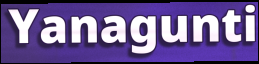
Yanagunti